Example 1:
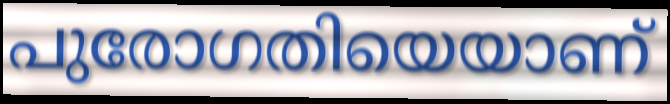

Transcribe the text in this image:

പുരോഗതിയെയാണ്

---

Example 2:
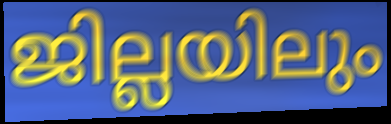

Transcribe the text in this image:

ജില്ലയിലും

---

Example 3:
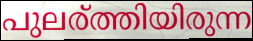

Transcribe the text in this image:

പുലര്ത്തിയിരുന്ന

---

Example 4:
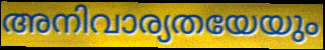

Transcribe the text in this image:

അനിവാര്യതയേയും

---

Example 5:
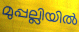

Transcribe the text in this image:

മുപ്പല്ലിയിൽ